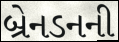
બ્રેનડનની